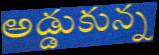
అడ్డుకున్న